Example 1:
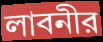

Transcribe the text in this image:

লাবনীর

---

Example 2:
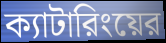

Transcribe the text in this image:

ক্যাটারিংয়ের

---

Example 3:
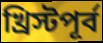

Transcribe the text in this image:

খ্রিস্টপূর্ব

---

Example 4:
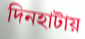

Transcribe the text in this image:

দিনহাটায়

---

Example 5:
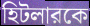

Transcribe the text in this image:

হিটলারকে